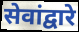
सेवांद्वारे